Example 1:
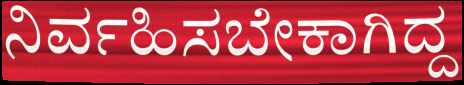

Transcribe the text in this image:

ನಿರ್ವಹಿಸಬೇಕಾಗಿದ್ದ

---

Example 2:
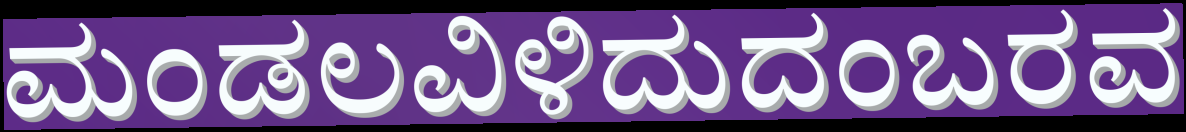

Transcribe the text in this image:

ಮಂಡಲವಿಳಿದುದಂಬರವ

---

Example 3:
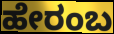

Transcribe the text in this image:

ಹೇರಂಬ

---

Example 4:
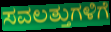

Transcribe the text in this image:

ಸವಲತ್ತುಗಳಿಗೆ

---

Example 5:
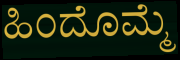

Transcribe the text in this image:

ಹಿಂದೊಮ್ಮೆ